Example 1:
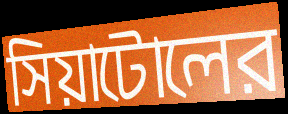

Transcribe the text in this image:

সিয়াটোলের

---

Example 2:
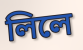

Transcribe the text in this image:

লিলে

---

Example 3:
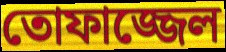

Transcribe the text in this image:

তোফাজ্জেল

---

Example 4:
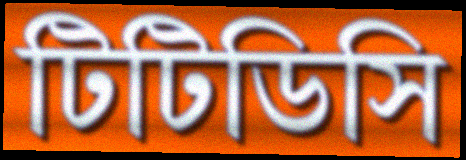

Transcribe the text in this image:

টিটিডিসি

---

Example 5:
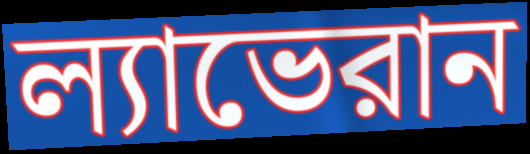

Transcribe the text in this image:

ল্যাভেরান